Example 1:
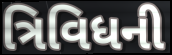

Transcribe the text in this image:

ત્રિવિધની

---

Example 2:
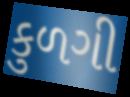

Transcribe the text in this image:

કુળગી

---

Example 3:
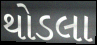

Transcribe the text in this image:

થોડલા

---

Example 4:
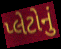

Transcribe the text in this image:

પ્લેટોનું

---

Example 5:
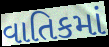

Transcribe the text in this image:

વાતિકમાં